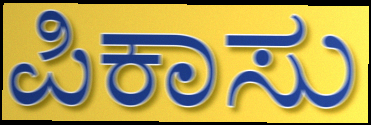
ಪಿಕಾಸು